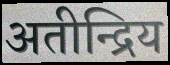
अतीन्द्रिय